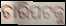
ଚାରିପଟକୁ